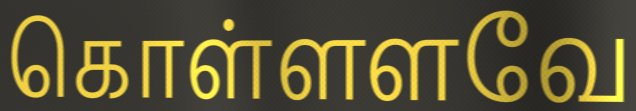
கொள்ளளவே